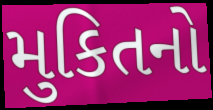
મુકિતનો